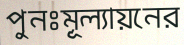
পুনঃমূল্যায়নের